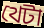
থেটা